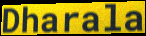
Dharala